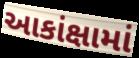
આકાંક્ષામાં